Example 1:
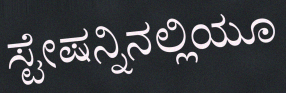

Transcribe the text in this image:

ಸ್ಟೇಷನ್ನಿನಲ್ಲಿಯೂ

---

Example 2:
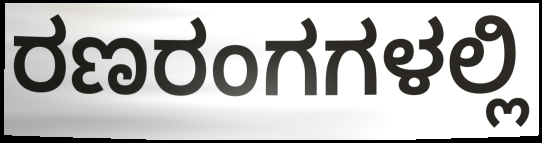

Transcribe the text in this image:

ರಣರಂಗಗಳಲ್ಲಿ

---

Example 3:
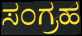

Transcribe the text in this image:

ಸಂಗ್ರಹ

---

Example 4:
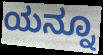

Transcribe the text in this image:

ಯನ್ನೂ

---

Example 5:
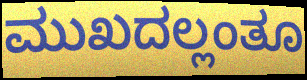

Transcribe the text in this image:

ಮುಖದಲ್ಲಂತೂ